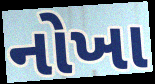
નોખા